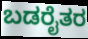
ಬಡರೈತರ